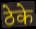
ठेके